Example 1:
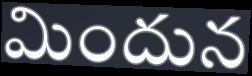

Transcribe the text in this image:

మిందున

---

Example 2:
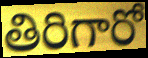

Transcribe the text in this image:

తిరిగారో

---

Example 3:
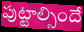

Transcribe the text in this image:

పుట్టాల్సిందే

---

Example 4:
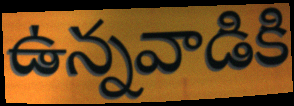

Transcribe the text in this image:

ఉన్నవాడికి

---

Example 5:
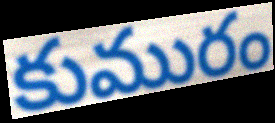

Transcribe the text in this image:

కుమురం